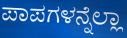
ಪಾಪಗಳನ್ನೆಲ್ಲಾ